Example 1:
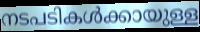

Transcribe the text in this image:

നടപടികൾക്കായുള്ള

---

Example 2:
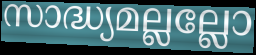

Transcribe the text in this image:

സാദ്ധ്യമല്ലല്ലോ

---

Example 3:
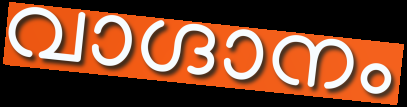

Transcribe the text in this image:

വാഗ്ദാനം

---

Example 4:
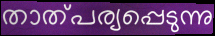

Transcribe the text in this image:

താത്പര്യപ്പെടുന്നു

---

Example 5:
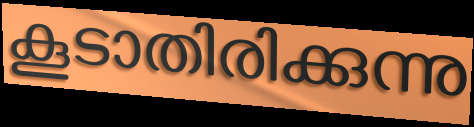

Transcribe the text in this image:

കൂടാതിരിക്കുന്നു